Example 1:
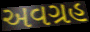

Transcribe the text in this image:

અવગ્રહ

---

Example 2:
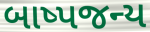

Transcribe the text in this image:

બાષ્પજન્ય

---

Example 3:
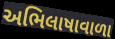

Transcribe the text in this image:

અભિલાષાવાળા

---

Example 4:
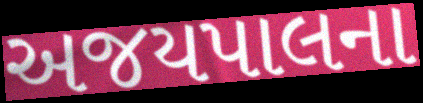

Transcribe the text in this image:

અજયપાલના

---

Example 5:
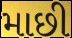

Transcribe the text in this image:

માછી